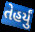
તેહર્યું